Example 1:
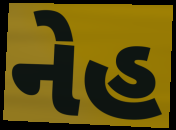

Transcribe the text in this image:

નેહ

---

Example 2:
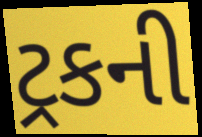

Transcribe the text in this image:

ટ્રકની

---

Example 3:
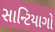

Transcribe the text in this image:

સાન્ટિયાગો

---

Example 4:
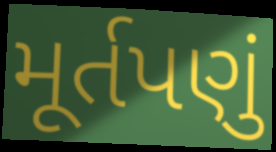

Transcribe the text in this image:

મૂર્તપણું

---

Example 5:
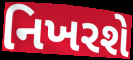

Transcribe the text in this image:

નિખરશે